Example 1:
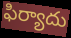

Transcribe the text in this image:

ఫిర్యాదు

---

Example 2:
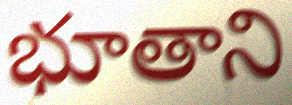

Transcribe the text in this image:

భూతాని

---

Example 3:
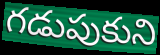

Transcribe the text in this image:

గడుపుకుని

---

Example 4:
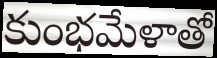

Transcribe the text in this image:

కుంభమేళాతో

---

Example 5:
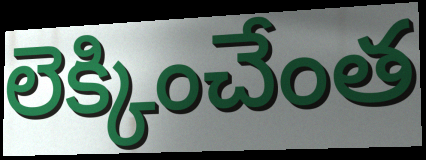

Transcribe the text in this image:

లెక్కించేంత